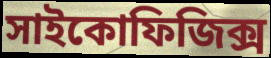
সাইকোফিজিক্স